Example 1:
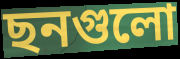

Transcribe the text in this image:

ছনগুলো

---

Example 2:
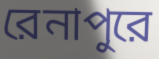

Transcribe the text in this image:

রেনাপুরে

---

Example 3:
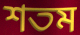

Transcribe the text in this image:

শতম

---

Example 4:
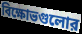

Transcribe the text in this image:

বিক্ষোভগুলোর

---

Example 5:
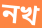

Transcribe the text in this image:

নখ